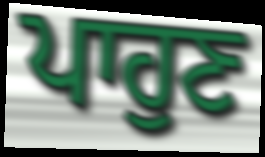
ਪਾਹੁਣ